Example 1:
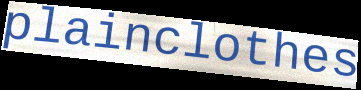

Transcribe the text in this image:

plainclothes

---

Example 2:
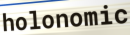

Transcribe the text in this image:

holonomic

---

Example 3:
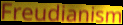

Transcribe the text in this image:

Freudianism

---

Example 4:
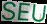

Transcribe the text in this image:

SEU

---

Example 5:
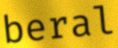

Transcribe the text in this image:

beral